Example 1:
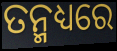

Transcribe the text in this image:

ତନ୍ମଧ୍ୟରେ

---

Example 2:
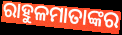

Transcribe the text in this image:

ରାହୁଳମାତାଙ୍କର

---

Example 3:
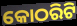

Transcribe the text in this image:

କୋଠରିଟି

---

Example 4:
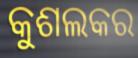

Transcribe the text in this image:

କୁଶଲକର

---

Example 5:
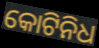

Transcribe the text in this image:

କୋଟିନିଧ